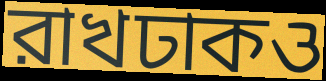
রাখঢাকও